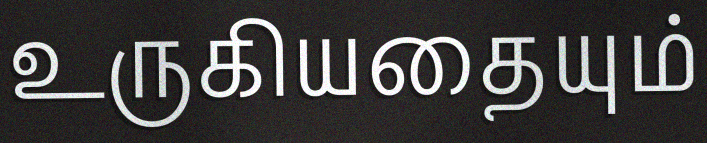
உருகியதையும்